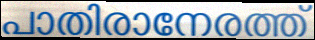
പാതിരാനേരത്ത്